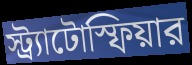
স্ট্র্যাটোস্ফিয়ার